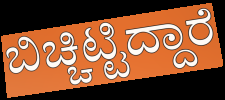
ಬಿಚ್ಚಿಟ್ಟಿದ್ದಾರೆ